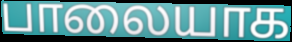
பாலையாக